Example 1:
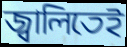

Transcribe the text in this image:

জ্বালিতেই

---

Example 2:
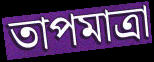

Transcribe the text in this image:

তাপমাত্রা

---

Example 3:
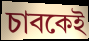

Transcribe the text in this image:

চাবকেই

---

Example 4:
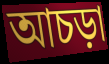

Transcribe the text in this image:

আচড়া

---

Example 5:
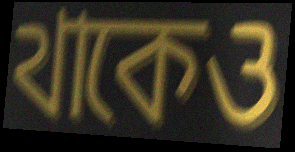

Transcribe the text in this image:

থাকেও